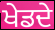
ਖੇਡਦੇ